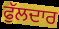
ਫੁੱਲਦਾਰ